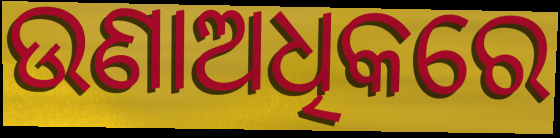
ଉଣାଅଧିକରେ